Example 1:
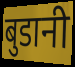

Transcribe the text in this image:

बुडानी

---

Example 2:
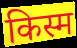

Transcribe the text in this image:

किस्म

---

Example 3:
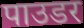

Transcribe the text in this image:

पाउडर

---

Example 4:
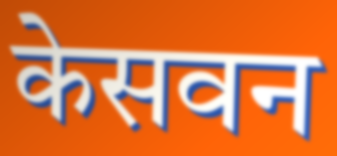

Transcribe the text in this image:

केसवन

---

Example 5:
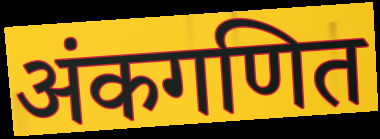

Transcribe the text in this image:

अंकगणित